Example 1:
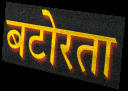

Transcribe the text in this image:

बटोरता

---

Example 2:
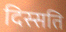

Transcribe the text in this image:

दिस्सति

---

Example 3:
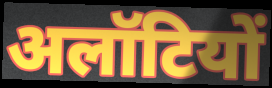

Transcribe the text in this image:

अलॉटियों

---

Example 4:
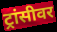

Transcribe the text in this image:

ट्रांसीवर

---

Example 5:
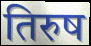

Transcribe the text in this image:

तिरुष